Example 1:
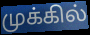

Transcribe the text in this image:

முக்கில்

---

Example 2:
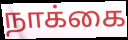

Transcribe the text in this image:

நாக்கை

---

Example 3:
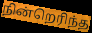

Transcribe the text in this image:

நின்றெரிந்த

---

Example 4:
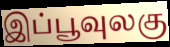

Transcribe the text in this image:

இப்பூவுலகு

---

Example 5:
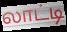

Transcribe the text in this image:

லாட்டி